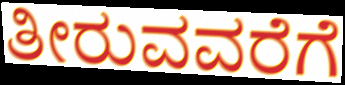
ತೀರುವವರೆಗೆ